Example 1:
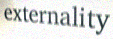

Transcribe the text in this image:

externality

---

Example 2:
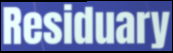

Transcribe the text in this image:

Residuary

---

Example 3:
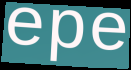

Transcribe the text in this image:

epe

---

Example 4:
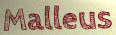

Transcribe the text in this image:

Malleus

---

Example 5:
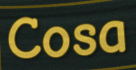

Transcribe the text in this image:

Cosa